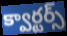
క్వార్టర్స్